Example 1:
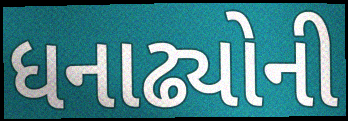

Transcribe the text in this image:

ધનાઢ્યોની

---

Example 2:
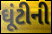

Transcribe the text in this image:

ઘૂંટીની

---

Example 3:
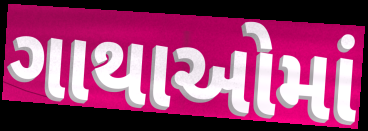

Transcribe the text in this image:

ગાથાઓમાં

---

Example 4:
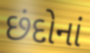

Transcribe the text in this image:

છંદોનાં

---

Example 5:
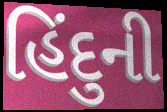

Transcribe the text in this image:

હિંદુની